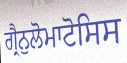
ਗ੍ਰੈਨੁਲੋਮਾਟੋਸਿਸ